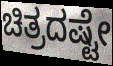
ಚಿತ್ರದಷ್ಟೇ